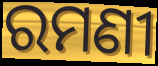
ରମଣୀ